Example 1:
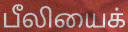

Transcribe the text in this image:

பீலியைக்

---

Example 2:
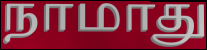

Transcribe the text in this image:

நாமாது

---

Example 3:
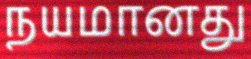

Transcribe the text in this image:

நயமானது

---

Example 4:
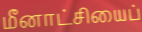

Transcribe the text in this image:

மீனாட்சியைப்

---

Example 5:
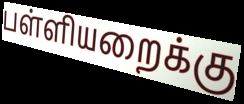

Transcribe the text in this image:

பள்ளியறைக்கு